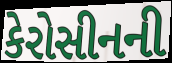
કેરોસીનની